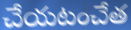
చేయటంచేత